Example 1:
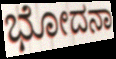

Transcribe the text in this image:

ಭೋದನಾ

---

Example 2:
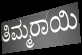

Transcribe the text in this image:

ತಿಮ್ಮರಾಯಿ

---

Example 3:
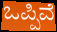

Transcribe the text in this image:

ಒಪ್ಪಿವೆ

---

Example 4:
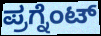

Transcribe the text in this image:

ಪ್ರಗ್ನೆಂಟ್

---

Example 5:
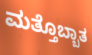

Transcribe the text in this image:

ಮತ್ತೊಬ್ಬಾತ